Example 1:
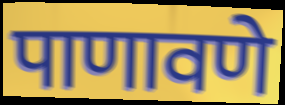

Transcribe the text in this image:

पाणावणे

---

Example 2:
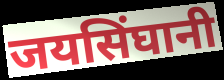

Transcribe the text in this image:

जयसिंघानी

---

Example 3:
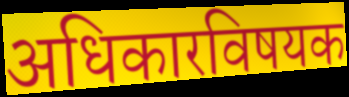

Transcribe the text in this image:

अधिकारविषयक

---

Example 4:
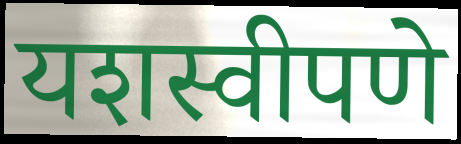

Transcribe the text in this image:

यशस्वीपणे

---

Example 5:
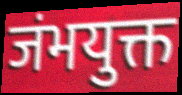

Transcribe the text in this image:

जंभयुक्त